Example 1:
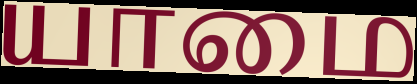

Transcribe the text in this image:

யாமை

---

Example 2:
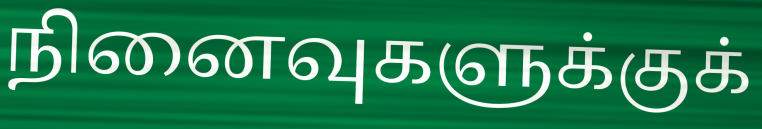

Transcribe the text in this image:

நினைவுகளுக்குக்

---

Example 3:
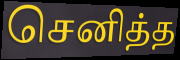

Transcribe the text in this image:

செனித்த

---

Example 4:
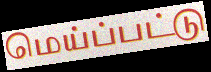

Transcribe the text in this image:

மெய்ப்பட்டு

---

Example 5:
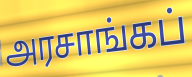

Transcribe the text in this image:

அரசாங்கப்